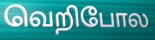
வெறிபோல